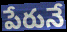
పేరునే